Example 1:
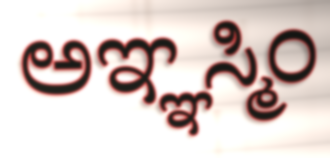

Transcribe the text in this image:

ಅಞ್ಞಸ್ಮಿಂ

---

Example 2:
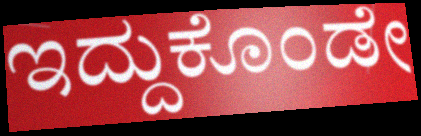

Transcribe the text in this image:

ಇದ್ದುಕೊಂಡೇ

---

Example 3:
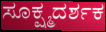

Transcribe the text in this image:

ಸೂಕ್ಷ್ಮದರ್ಶಕ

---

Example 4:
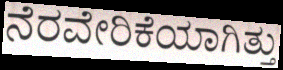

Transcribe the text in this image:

ನೆರವೇರಿಕೆಯಾಗಿತ್ತು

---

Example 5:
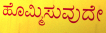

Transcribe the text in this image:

ಹೊಮ್ಮಿಸುವುದೇ